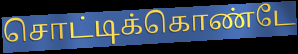
சொட்டிக்கொண்டே